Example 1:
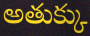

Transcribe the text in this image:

అతుక్కు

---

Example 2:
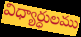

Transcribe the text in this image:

విధ్యార్ధులము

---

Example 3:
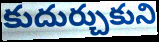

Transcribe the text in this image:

కుదుర్చుకుని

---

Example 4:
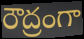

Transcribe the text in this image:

రౌద్రంగా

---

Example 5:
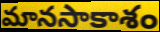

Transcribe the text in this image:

మానసాకాశం